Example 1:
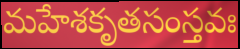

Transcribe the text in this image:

మహేశకృతసంస్తవః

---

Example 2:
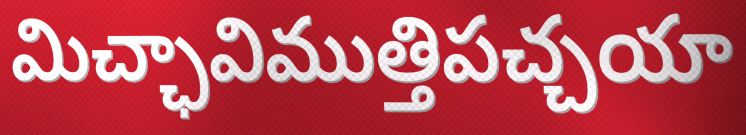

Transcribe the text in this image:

మిచ్ఛావిముత్తిపచ్చయా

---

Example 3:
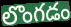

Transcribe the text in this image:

లొంగడం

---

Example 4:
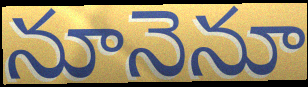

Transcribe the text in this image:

నూనెనూ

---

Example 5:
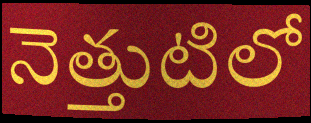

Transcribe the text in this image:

నెత్తుటిలో